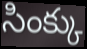
సింక్కు